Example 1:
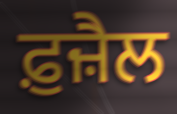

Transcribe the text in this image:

ਫ਼ੁਜ਼ੈਲ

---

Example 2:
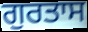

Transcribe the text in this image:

ਗੁਰਤਾਸ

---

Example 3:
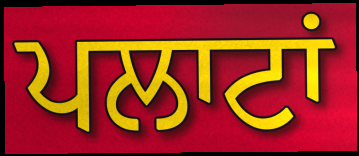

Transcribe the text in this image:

ਪਲਾਟਾਂ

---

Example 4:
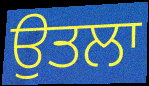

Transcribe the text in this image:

ਉਤਲਾ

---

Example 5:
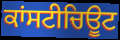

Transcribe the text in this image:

ਕਾਂਸਟੀਚਿਊਟ